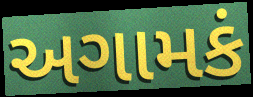
અગામકં